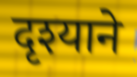
दृश्याने